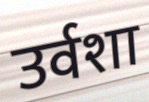
उर्वशा